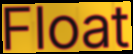
Float